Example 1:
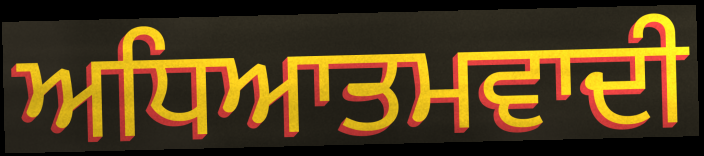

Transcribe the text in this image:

ਅਧਿਆਤਮਵਾਦੀ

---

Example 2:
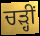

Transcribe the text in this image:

ਚੜ੍ਹੀਂ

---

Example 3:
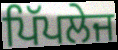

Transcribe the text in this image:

ਪਿੱਪਲੇਜ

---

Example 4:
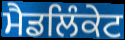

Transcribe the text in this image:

ਮੈਡਲਿੰਕੇਟ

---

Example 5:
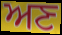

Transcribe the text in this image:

ਅਣ